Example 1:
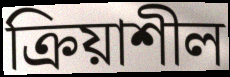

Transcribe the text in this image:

ক্ৰিয়াশীল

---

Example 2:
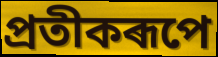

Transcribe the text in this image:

প্ৰতীকৰূপে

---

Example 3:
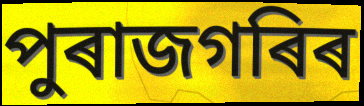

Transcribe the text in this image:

পুৰাজগৰিৰ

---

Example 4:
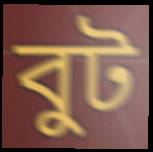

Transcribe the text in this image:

বুট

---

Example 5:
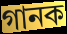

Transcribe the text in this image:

গানক